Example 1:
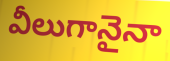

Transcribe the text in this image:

వీలుగానైనా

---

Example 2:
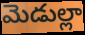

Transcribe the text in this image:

మెడుల్లా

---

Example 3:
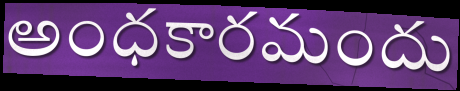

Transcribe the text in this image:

అంధకారమందు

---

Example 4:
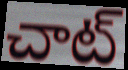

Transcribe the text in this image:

చాట్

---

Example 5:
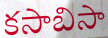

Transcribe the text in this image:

కసాబిసా